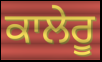
ਕਾਲੇਰੂ